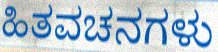
ಹಿತವಚನಗಳು